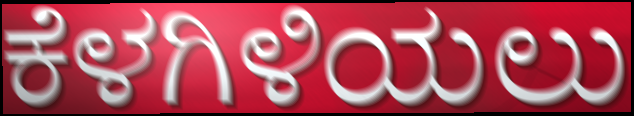
ಕೆಳಗಿಳಿಯಲು